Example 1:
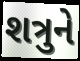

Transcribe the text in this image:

શત્રુને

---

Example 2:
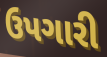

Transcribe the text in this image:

ઉપગારી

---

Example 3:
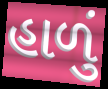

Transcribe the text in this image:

હાળું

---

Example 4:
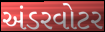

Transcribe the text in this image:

અંડરવોટર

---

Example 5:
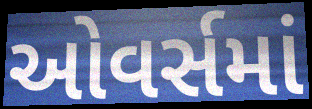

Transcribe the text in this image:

ઓવર્સમાં